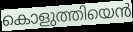
കൊളുത്തിയെൻ